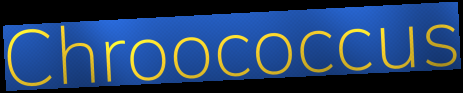
Chroococcus